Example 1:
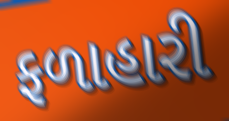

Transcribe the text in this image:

ફળાહારી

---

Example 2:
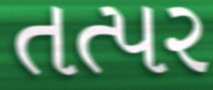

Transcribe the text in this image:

તત્પર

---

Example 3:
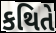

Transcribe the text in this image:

કથિતે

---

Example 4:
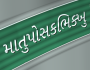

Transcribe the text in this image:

માતુપોસકભિક્ખુ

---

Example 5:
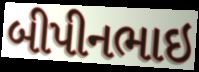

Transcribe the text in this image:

બીપીનભાઇ